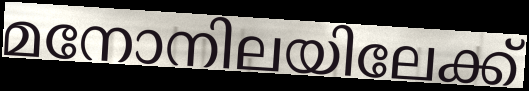
മനോനിലയിലേക്ക്